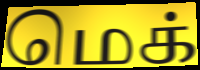
மெக்